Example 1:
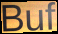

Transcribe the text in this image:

Buf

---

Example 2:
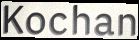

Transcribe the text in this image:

Kochan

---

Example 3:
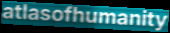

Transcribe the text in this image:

atlasofhumanity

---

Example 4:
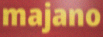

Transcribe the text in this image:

majano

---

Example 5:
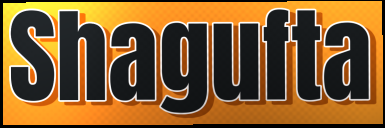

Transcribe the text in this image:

Shagufta